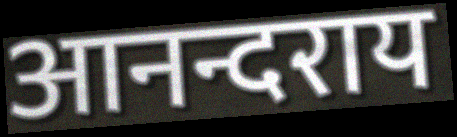
आनन्दराय